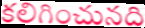
కలిగించునది